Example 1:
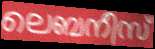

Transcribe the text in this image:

ലെബനീസ്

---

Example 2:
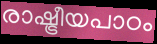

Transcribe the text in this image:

രാഷ്ട്രീയപാഠം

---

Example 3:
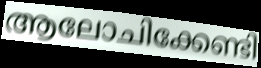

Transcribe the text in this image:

ആലോചിക്കേണ്ടി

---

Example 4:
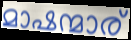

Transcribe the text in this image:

മാഷന്മാര്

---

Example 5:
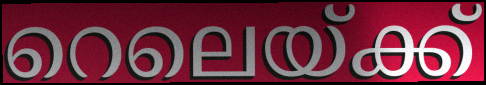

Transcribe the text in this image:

റെലെയ്ക്ക്